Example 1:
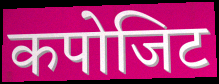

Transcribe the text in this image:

कपोजिट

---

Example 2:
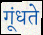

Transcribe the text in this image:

गूंधते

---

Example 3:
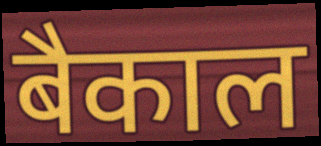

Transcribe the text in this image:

बैकाल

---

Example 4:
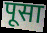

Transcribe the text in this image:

पूसा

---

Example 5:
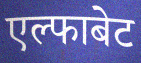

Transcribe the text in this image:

एल्फाबेट